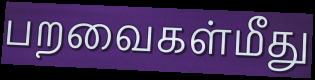
பறவைகள்மீது